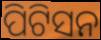
ପିଟିସନ